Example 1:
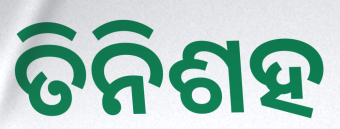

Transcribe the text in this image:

ତିନିଶହ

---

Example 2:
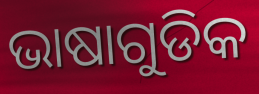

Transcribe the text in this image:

ଭାଷାଗୁଡିକ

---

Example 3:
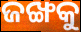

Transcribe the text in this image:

ଜଙ୍ଖକୁ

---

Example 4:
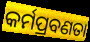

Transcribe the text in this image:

କର୍ମପ୍ରବଣତା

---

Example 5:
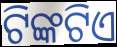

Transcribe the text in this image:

ଟିଙ୍କଟିଏ